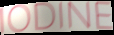
IODINE